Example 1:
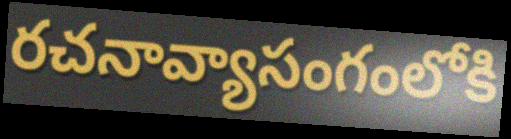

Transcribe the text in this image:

రచనావ్యాసంగంలోకి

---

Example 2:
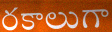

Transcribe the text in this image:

రకాలుగా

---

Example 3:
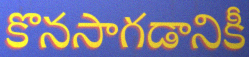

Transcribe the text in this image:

కొనసాగడానికీ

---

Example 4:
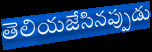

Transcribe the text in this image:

తెలియజేసినప్పుడు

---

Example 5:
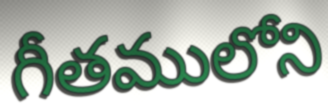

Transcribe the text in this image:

గీతములోని